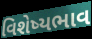
વિશેષ્યભાવ